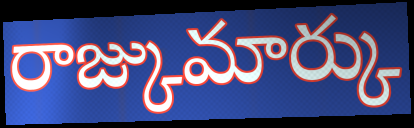
రాజ్కుమార్కు